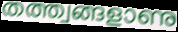
തത്ത്വങ്ങളാണു